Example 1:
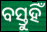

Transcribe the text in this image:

ବସ୍ତୁହିଁ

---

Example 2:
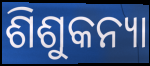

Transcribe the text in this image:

ଶିଶୁକନ୍ୟା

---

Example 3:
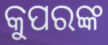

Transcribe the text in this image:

କୁପରଙ୍କ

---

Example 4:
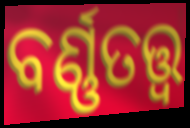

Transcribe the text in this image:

ବର୍ଣ୍ଣତତ୍ତ୍ଵ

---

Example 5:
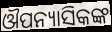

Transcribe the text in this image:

ଔପନ୍ୟାସିକଙ୍କ